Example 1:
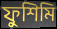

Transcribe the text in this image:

ফুশিমি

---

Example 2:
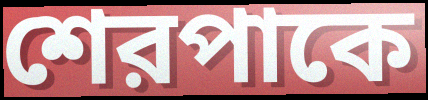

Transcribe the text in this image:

শেরপাকে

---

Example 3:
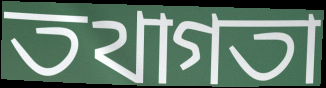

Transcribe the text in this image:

তথাগতা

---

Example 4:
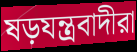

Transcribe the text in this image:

ষড়যন্ত্রবাদীরা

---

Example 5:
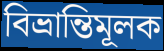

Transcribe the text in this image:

বিভ্রান্তিমূলক